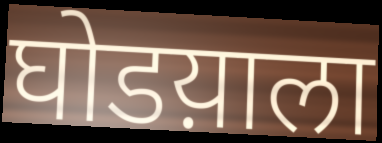
घोडय़ाला